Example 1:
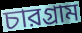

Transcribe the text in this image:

চারগ্রাম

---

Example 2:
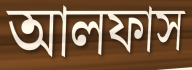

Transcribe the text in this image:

আলফাস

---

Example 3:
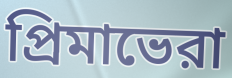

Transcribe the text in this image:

প্রিমাভেরা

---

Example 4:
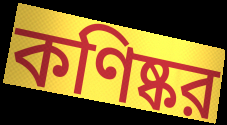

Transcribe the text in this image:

কণিষ্কর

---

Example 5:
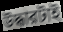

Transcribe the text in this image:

উদ্ধারটাই